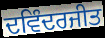
ਦਵਿੰਦਰਜੀਤ